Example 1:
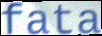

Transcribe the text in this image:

fata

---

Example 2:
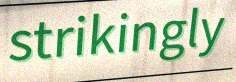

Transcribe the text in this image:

strikingly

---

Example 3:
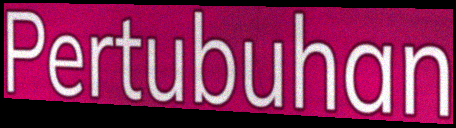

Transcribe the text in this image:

Pertubuhan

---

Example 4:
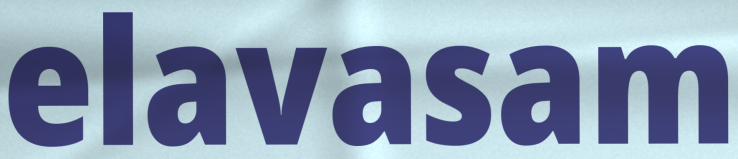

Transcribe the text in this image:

elavasam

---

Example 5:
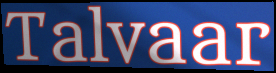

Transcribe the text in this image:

Talvaar